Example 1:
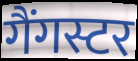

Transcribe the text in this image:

गैंगस्टर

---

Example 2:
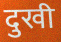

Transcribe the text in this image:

दुखी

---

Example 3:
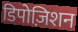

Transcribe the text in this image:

डिपोज़िशन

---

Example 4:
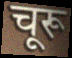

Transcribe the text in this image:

चूरू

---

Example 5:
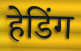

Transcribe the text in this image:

हेडिंग